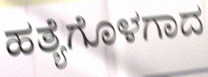
ಹತ್ಯೆಗೊಳಗಾದ